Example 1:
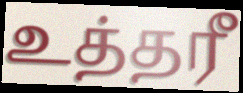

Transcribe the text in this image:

உத்தரீ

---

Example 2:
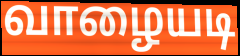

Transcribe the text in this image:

வாழையடி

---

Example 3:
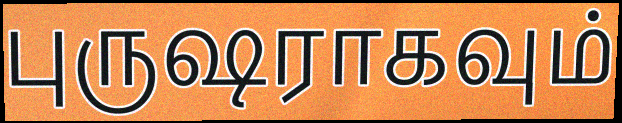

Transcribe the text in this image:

புருஷராகவும்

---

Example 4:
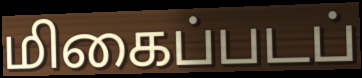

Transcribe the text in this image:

மிகைப்படப்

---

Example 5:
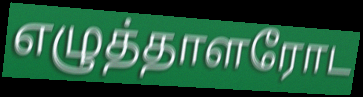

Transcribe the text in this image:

எழுத்தாளரோட